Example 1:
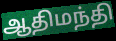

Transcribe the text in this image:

ஆதிமந்தி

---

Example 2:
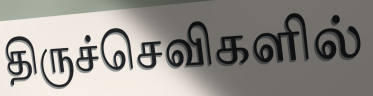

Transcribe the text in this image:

திருச்செவிகளில்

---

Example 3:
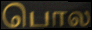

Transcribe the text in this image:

பொல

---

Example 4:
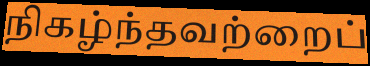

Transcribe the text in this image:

நிகழ்ந்தவற்றைப்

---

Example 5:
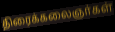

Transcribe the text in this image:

திரைக்கலைஞர்கள்